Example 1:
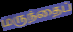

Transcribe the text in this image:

மருந்தைப்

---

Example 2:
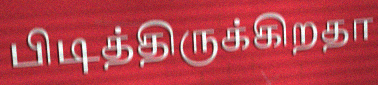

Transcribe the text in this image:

பிடித்திருக்கிறதா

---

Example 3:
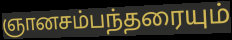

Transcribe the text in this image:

ஞானசம்பந்தரையும்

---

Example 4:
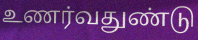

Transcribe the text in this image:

உணர்வதுண்டு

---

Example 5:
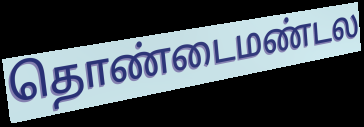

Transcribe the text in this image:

தொண்டைமண்டல